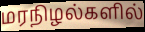
மரநிழல்களில்